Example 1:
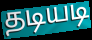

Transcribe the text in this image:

தடியடி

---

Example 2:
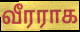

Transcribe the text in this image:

வீரராக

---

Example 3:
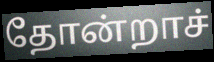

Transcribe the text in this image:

தோன்றாச்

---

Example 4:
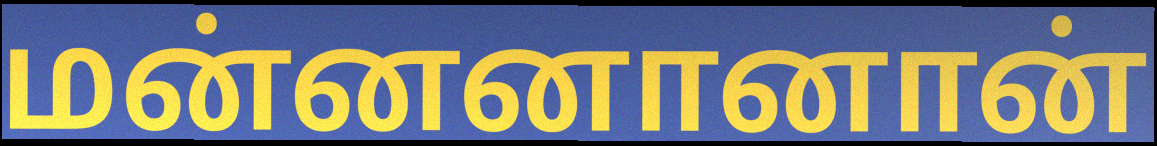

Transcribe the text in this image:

மன்னனானான்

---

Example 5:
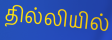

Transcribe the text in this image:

தில்லியில்